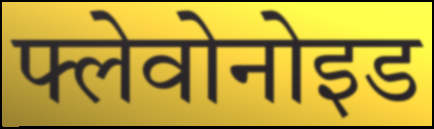
फ्लेवोनोइड